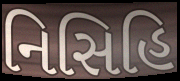
નિસિહિ